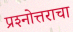
प्रश्‍नोत्तराचा